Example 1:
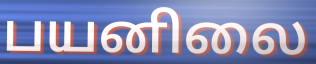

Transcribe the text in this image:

பயனிலை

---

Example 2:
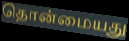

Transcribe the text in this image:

தொன்மையது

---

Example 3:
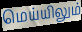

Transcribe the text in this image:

மெய்யிலும்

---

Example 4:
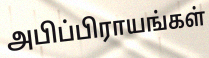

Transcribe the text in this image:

அபிப்பிராயங்கள்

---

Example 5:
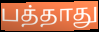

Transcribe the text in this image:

பத்தாது